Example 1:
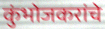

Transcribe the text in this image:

कुंभोजकरांचे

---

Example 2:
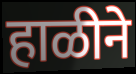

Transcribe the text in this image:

हाळीने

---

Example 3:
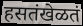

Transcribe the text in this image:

हसतंखेळतं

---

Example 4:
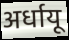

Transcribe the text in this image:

अर्धायू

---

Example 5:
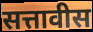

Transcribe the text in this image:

सत्तावीस